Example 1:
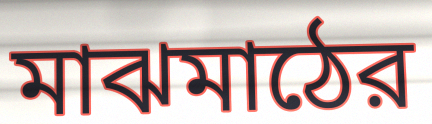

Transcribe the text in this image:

মাঝমাঠের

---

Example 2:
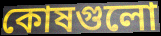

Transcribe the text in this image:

কোষগুলো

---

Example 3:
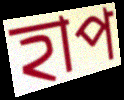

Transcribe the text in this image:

হাপ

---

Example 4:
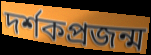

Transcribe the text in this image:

দর্শকপ্রজন্ম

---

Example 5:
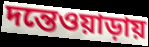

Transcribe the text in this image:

দন্তেওয়াড়ায়